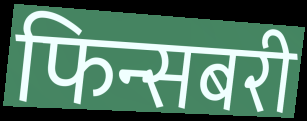
फिन्सबरी